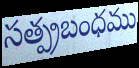
సత్ప్రబంధము